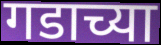
गडाच्या